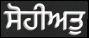
ਸੋਹੀਅਤੁ